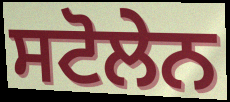
ਸਟੋਲੇਨ